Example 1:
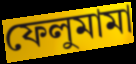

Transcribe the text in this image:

ফেলুমামা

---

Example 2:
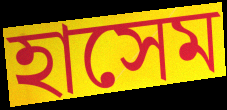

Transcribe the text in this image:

হাসেম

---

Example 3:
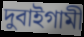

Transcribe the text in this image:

দুবাইগামী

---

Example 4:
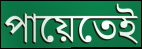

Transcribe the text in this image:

পায়েতেই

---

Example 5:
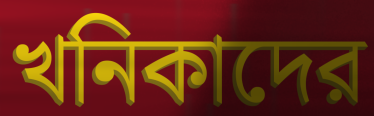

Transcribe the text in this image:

খনিকাদের